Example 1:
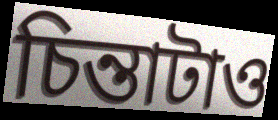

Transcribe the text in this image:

চিন্তাটাও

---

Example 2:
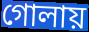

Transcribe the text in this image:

গোলায়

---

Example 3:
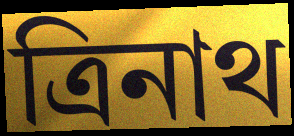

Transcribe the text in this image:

ত্রিনাথ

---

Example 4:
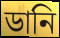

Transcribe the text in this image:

ডানি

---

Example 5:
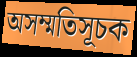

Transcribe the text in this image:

অসম্মতিসূচক